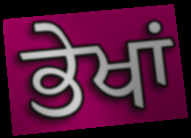
ਭੇਖਾਂ